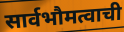
सार्वभौमत्वाची